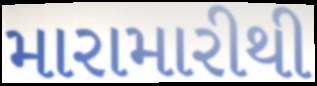
મારામારીથી